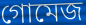
গোমেজ